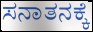
ಸನಾತನಕ್ಕೆ